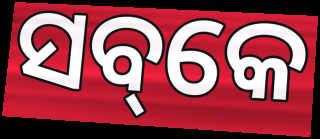
ସବ୍‌କେ